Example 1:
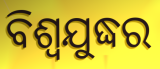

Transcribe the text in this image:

ବିଶ୍ୱଯୁଦ୍ଧର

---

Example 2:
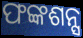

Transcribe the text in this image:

ଫଙ୍କଶନ୍ସ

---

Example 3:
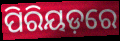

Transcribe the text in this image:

ପିରିୟଡ଼ରେ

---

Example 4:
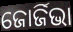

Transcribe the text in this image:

ଜୋର୍ଜିଭା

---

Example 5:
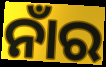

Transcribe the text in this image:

ନାଁର